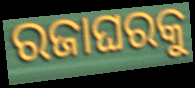
ରଜାଘରକୁ